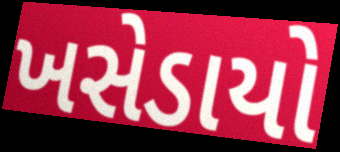
ખસેડાયો